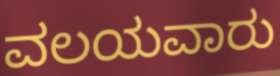
ವಲಯವಾರು